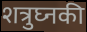
शत्रुघ्नकी